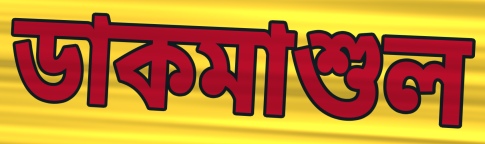
ডাকমাশুল